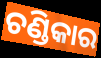
ଚଣ୍ଡିକାର